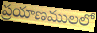
ప్రయాణములలో